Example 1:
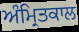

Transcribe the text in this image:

ਅੰਮ੍ਰਿਤਕਾਲ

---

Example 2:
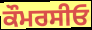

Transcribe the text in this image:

ਕੌਮਰਸੀਓ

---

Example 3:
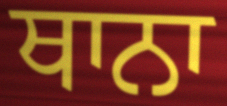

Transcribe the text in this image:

ਥਾਨਾ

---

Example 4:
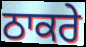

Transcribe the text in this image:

ਠਾਕਰੇ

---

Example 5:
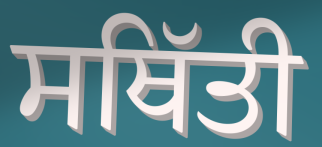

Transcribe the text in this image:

ਸਥਿੱਤੀ